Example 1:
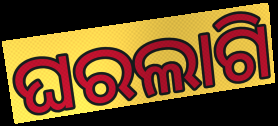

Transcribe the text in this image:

ଘରଲାଗି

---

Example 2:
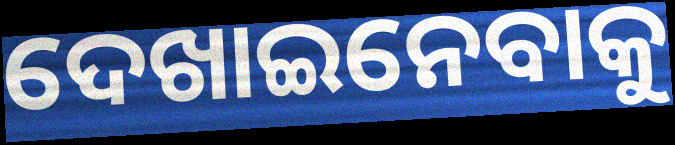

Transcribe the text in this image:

ଦେଖାଇନେବାକୁ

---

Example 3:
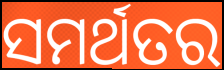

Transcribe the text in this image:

ସମର୍ଥତର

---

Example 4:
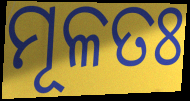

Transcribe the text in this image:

ମୂଳତଃ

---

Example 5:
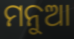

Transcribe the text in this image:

ମନୁଆ